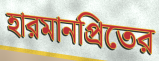
হারমানপ্রিতের